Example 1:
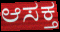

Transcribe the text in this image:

ಆಸಕ್ತ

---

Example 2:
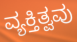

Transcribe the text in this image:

ವ್ಯಕ್ತಿತ್ವವು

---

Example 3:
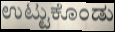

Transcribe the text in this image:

ಉಟ್ಟುಕೊಂಡು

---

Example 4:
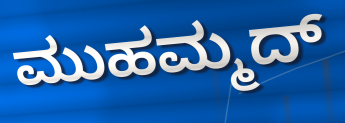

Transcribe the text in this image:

ಮುಹಮ್ಮದ್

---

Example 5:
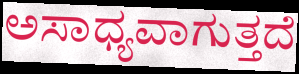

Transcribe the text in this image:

ಅಸಾಧ್ಯವಾಗುತ್ತದೆ